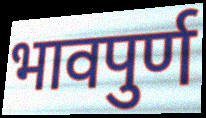
भावपुर्ण